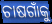
ଚାଷଗାଁକୁ